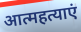
आत्महत्याएं